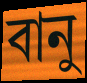
বানু